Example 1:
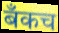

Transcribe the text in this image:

बँकच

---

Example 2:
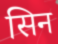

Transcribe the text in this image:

सिन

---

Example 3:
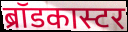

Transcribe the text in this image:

ब्रॉडकास्टर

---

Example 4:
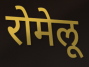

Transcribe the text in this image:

रोमेलू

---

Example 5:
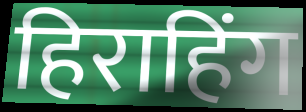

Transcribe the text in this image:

हिराहिंग